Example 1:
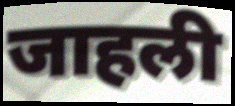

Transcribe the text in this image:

जाहली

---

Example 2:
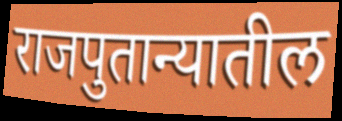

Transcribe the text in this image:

राजपुतान्यातील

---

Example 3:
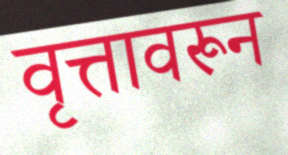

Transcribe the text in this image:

वृत्तावरून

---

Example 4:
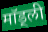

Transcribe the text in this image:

मॉड्ली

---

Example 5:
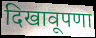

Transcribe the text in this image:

दिखावूपणा